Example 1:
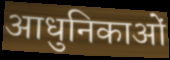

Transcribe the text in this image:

आधुनिकाओं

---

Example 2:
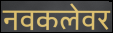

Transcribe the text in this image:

नवकलेवर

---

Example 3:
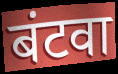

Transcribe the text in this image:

बंटवा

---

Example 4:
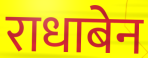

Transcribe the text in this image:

राधाबेन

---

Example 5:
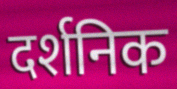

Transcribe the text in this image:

दर्शनिक